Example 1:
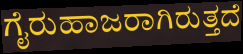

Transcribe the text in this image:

ಗೈರುಹಾಜರಾಗಿರುತ್ತದೆ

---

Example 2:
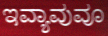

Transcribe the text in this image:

ಇವ್ಯಾವುವೂ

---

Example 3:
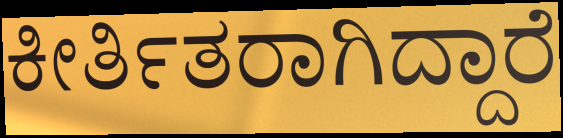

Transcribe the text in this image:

ಕೀರ್ತಿತರಾಗಿದ್ದಾರೆ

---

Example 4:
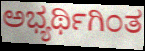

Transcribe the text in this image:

ಅಭ್ಯರ್ಥಿಗಿಂತ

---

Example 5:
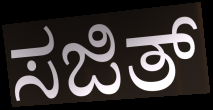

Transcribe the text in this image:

ಸಜಿತ್